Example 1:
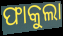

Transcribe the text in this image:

ଫାକୁଲା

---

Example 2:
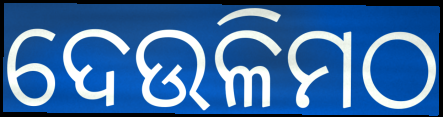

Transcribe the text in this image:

ଦେଉଳିମଠ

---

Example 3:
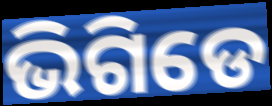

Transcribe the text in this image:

ଭିଗିଡେ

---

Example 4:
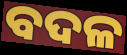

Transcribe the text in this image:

ବଦଳ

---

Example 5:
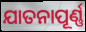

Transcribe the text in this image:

ଯାତନାପୂର୍ଣ୍ଣ